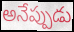
అనేప్పుడు